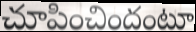
చూపించిందంటూ